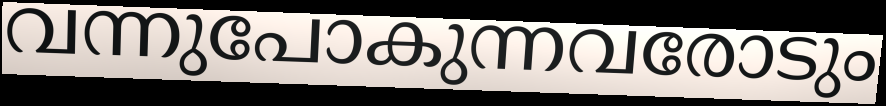
വന്നുപോകുന്നവരോടും